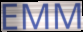
EMM